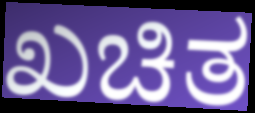
ಖಚಿತ